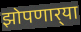
झोपणार्‍या